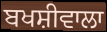
ਬਖਸ਼ੀਵਾਲਾ